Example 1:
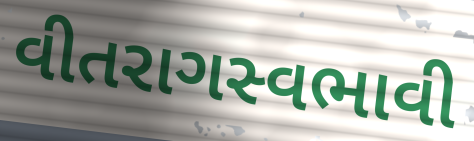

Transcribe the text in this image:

વીતરાગસ્વભાવી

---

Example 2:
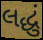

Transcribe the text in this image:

લદ્ધું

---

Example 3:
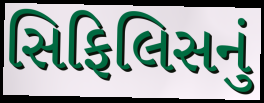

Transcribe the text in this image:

સિફિલિસનું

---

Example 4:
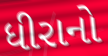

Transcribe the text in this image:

ધીરાનો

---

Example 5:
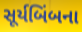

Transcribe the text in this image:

સૂર્યબિંબના